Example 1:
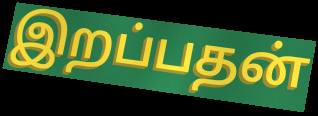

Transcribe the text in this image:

இறப்பதன்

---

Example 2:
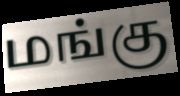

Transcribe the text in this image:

மங்கு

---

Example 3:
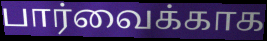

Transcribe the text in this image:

பார்வைக்காக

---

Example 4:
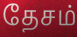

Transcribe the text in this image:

தேசம்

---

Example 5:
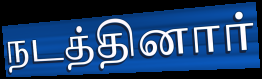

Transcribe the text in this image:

நடத்தினார்